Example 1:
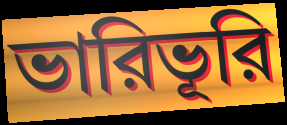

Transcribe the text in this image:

ভারিভূরি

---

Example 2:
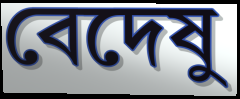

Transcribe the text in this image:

বেদেষু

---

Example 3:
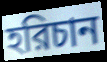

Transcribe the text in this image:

হরিচান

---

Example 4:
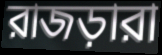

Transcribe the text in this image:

রাজড়ারা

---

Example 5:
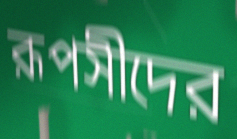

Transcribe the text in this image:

রূপসীদের